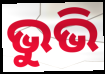
ଭୁଭି